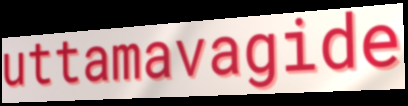
uttamavagide